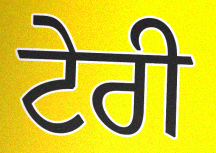
ਟੇਰੀ